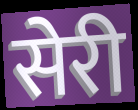
सेरी